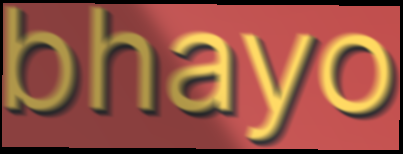
bhayo